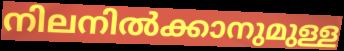
നിലനിൽക്കാനുമുള്ള